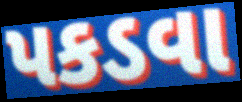
પકડવા